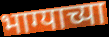
भाग्याच्या